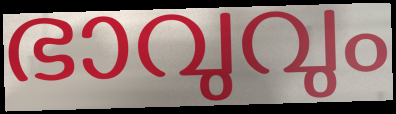
ഭാവുവും